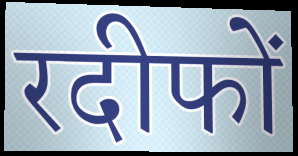
रदीफों